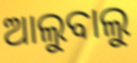
ଆଲୁବାଲୁ